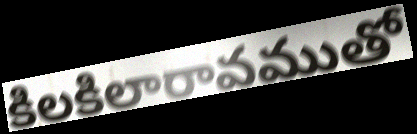
కిలకిలారావముతో